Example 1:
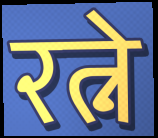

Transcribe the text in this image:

रत्ने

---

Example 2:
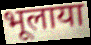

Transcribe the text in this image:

भूलाया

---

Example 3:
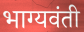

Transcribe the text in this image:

भाग्यवंती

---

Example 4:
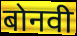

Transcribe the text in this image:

बोनवी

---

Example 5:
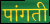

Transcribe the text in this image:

पांगती